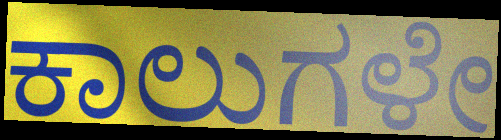
ಕಾಲುಗಳೇ